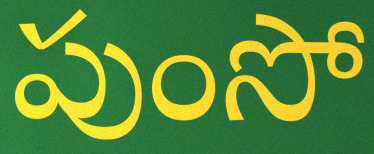
పుంసో